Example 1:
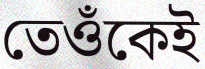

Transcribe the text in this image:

তেওঁকেই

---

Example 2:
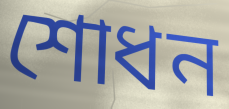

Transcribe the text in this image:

শোধন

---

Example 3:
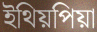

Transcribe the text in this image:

ইথিয়পিয়া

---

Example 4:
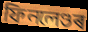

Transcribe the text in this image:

ফিনলেণ্ডৰ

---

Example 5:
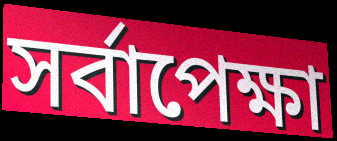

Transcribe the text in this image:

সৰ্বাপেক্ষা